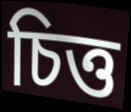
চিত্ত